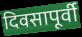
दिवसापूर्वी